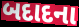
બદાદના